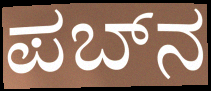
ಪಬ್‌ನ